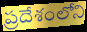
ప్రదేశంలోని